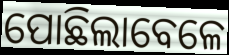
ପୋଛିଲାବେଳେ